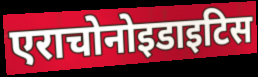
एराचोनोइडाइटिस